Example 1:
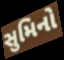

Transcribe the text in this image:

સુમિનો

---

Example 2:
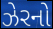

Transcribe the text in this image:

ઝેરનો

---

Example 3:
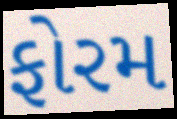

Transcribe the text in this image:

ફોરમ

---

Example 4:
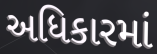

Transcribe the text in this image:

અધિકારમાં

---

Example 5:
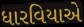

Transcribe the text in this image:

ધારવિયાએ